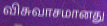
விசுவாசமானது